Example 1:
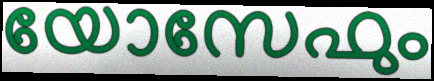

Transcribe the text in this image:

യോസേഫും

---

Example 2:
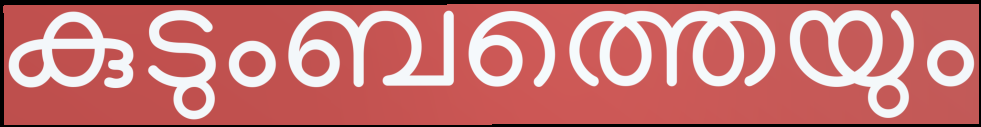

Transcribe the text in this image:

കുടുംബത്തെയും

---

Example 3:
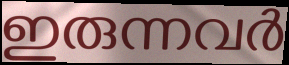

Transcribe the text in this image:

ഇരുന്നവർ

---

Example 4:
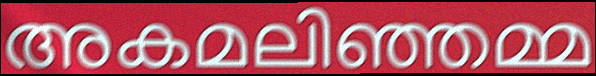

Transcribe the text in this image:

അകമലിഞ്ഞമ്മ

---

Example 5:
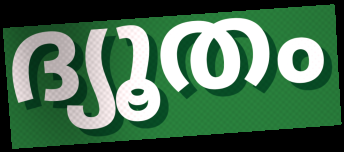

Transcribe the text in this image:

ദ്യൂതം